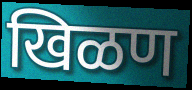
खिळण